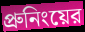
প্রুনিংয়ের